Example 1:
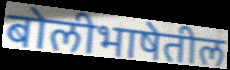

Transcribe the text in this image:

बोलीभाषेतील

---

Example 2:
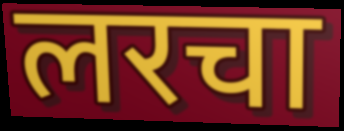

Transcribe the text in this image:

लरचा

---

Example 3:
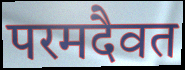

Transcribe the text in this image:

परमदैवत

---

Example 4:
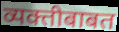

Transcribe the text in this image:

व्यक्तीबाबत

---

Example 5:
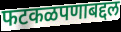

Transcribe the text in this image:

फटकळपणाबद्दल